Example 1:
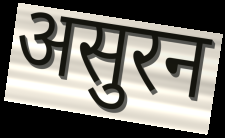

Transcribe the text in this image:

असुरन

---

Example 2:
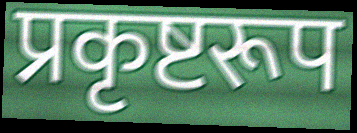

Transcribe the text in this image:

प्रकृष्टरूप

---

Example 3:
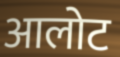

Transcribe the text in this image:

आलोट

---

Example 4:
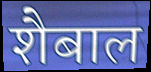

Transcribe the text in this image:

शैबाल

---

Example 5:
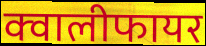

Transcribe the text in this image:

क्‍वालीफायर